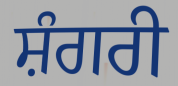
ਸ਼ੰਗਰੀ